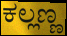
ಕಲ್ಲಣ್ಣ